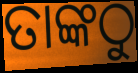
ତାଙ୍କଠୁ